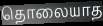
தொலையாத